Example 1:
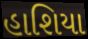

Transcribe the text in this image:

હાશિયા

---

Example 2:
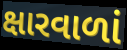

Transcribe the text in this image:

ક્ષારવાળાં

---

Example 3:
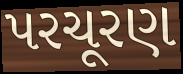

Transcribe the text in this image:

પરચૂરણ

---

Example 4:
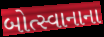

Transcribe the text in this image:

બોત્સ્વાનાના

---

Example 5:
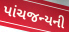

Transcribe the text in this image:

પાંચજન્યની